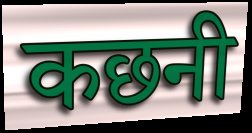
कछनी